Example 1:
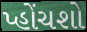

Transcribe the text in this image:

પ્હોંચશો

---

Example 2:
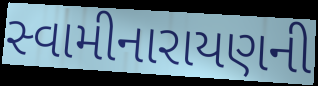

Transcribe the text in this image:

સ્વામીનારાયણની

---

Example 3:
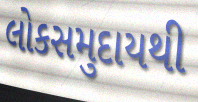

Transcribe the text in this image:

લોકસમુદાયથી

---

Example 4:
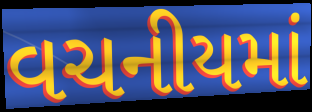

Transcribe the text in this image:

વચનીયમાં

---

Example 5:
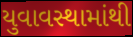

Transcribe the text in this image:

યુવાવસ્થામાંથી